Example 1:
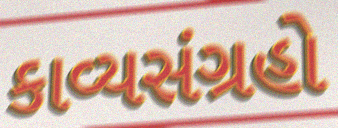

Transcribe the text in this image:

કાવ્યસંગ્રહો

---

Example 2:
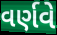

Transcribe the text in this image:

વર્ણવે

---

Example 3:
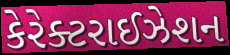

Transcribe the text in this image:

કેરેક્ટરાઈઝેશન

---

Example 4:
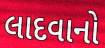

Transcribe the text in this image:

લાદવાનો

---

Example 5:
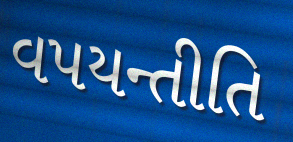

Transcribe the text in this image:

વપયન્તીતિ